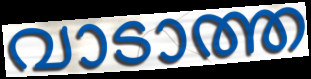
വാടാത്ത